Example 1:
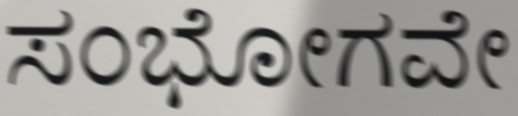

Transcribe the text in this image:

ಸಂಭೋಗವೇ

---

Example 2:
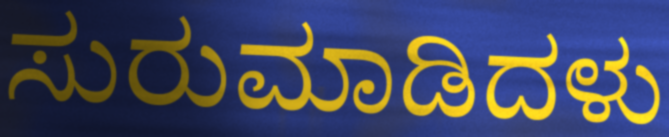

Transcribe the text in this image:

ಸುರುಮಾಡಿದಳು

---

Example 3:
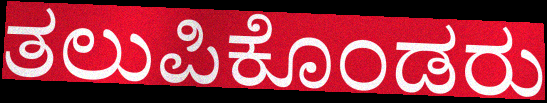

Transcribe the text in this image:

ತಲುಪಿಕೊಂಡರು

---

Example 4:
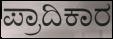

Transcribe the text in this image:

ಪ್ರಾದಿಕಾರ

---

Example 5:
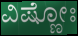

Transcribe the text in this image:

ವಿಷ್ಣೋಃ